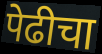
पेढीचा